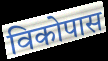
विकोपास